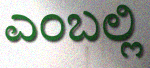
ಎಂಬಲ್ಲಿ